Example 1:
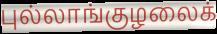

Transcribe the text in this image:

புல்லாங்குழலைக்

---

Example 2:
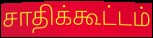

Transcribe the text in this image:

சாதிக்கூட்டம்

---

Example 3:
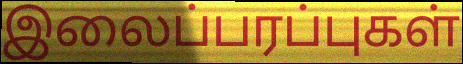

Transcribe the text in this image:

இலைப்பரப்புகள்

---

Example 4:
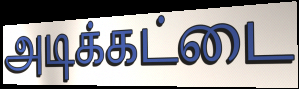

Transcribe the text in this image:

அடிக்கட்டை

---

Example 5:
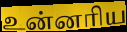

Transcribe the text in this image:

உன்னரிய